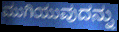
ಮುಗಿಯುವುದನ್ನು